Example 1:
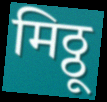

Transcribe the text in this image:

मिठ्ठू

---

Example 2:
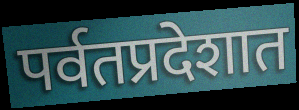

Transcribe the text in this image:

पर्वतप्रदेशात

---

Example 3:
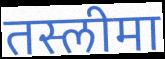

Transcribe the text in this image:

तस्लीमा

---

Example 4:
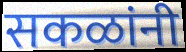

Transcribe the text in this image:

सकळांनी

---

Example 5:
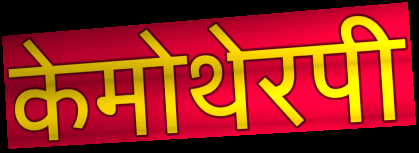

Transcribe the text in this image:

केमोथेरपी